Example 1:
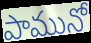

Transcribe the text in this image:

పామునో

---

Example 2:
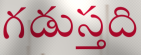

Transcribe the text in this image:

గడుస్తది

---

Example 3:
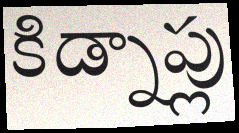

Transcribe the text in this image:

కిడ్నాప్లు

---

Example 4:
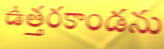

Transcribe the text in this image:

ఉత్తరకాండను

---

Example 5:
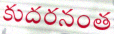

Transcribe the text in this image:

కుదరనంత